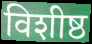
विशीष्ठ